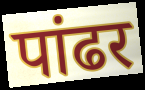
पांढर